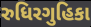
રુધિરગુહિકા